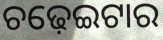
ଚଢ଼େଇଟାର